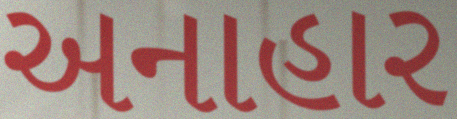
અનાહાર